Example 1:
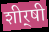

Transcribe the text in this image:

शीर्षी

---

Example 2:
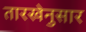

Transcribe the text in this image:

तारखेनुसार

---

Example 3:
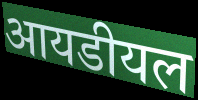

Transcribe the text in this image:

आयडीयल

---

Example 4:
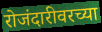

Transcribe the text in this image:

रोजंदारीवरच्या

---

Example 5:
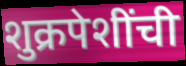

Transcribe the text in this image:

शुक्रपेशींची